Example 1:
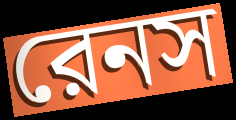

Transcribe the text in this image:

রেনস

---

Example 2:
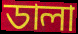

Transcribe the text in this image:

ডালা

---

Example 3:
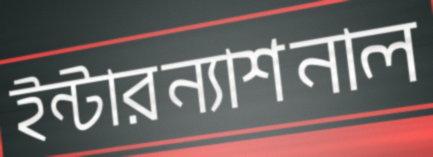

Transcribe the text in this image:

ইন্টারন্যাশনাল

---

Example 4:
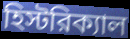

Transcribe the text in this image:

হিস্টরিক্যাল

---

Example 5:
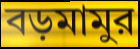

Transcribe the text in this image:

বড়মামুর